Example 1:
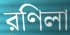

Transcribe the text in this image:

রণিলা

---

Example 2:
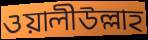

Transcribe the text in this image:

ওয়ালীউল্লাহ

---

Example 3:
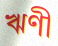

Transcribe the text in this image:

ঋণী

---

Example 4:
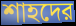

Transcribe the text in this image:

শাহদের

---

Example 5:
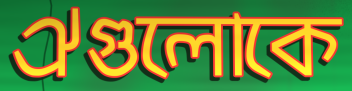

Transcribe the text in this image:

ঐগুলোকে